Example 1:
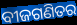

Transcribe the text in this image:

ବୀଜଗଣିତର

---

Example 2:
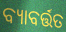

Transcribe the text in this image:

ବ୍ୟାବର୍ତ୍ତତ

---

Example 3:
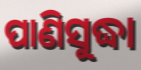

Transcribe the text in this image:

ପାଣିସୁଦ୍ଧା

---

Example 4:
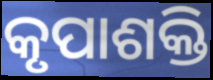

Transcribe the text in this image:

କୃପାଶକ୍ତି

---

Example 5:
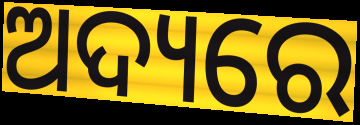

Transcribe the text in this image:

ଅଦ୍ୟରେ